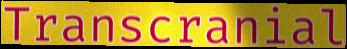
Transcranial